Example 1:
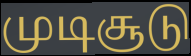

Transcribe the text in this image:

முடிசூடு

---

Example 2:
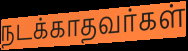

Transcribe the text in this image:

நடக்காதவர்கள்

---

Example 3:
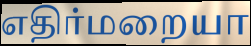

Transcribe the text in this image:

எதிர்மறையா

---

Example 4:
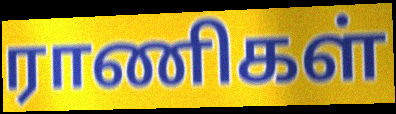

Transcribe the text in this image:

ராணிகள்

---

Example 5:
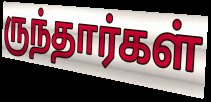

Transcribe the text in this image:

ருந்தார்கள்